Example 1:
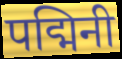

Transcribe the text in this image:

पद्मिनी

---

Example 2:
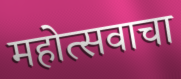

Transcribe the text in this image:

महोत्सवाचा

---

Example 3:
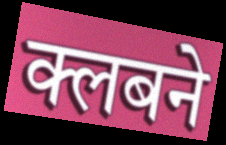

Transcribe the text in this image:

क्‍लबने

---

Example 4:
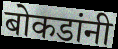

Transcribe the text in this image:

बोकडांनी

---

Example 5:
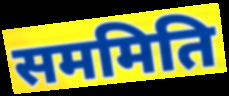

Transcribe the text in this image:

सममिति